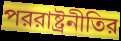
পররাষ্ট্রনীতির